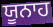
ਯੂਨਾਹ